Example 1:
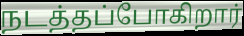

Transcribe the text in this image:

நடத்தப்போகிறார்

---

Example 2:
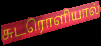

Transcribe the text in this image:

சுடரொளியால்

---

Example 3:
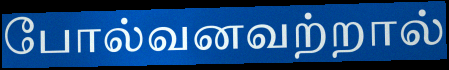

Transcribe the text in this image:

போல்வனவற்றால்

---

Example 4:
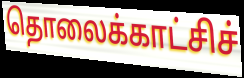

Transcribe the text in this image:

தொலைக்காட்சிச்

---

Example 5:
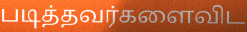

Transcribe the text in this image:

படித்தவர்களைவிட